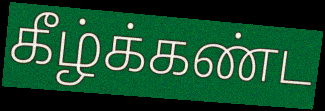
கீழ்க்கண்ட